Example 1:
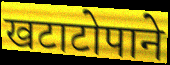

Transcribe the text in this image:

खटाटोपाने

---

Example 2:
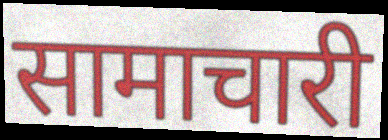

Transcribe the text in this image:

सामाचारी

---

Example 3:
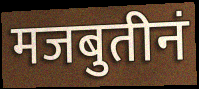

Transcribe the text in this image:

मजबुतीनं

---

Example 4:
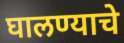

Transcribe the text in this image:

घालण्याचे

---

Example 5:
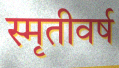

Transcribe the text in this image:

स्मृतीवर्ष